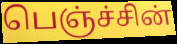
பெஞ்ச்சின்